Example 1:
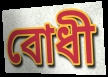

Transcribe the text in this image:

বোধী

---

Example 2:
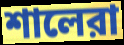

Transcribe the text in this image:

শালেরা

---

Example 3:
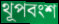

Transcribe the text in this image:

থূপবংশ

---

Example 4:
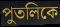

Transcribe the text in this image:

পুতলিকে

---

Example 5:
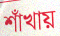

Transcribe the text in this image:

শাঁখায়